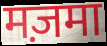
मज़मा